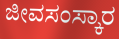
ಜೀವಸಂಸ್ಕಾರ